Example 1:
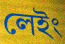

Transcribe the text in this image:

লেইং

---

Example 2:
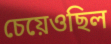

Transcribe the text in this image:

চেয়েওছিল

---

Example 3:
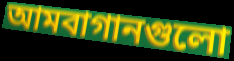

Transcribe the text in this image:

আমবাগানগুলো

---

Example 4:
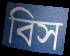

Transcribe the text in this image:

বিস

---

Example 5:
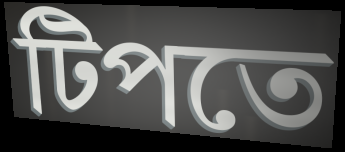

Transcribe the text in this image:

টিপতে